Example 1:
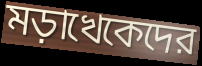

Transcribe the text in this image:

মড়াখেকেদের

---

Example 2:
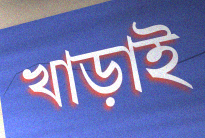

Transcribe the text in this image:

খাড়াই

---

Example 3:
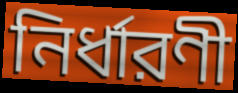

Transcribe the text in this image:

নির্ধারণী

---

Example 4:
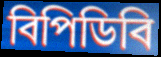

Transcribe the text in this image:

বিপিডিবি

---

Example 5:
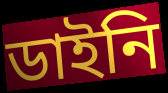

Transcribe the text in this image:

ডাইনি